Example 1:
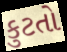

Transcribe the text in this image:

કુટતો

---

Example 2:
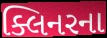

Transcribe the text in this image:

ક્લિનરના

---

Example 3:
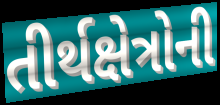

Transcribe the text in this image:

તીર્થક્ષેત્રોની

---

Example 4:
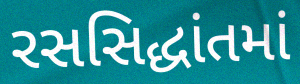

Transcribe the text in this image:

રસસિદ્ધાંતમાં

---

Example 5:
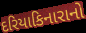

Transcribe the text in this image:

દરિયાકિનારાનો